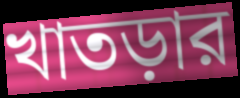
খাতড়ার